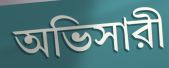
অভিসারী